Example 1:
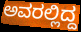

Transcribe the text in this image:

ಅವರಲ್ಲಿದ್ದ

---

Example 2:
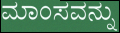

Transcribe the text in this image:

ಮಾಂಸವನ್ನು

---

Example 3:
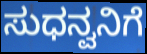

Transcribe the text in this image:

ಸುಧನ್ವನಿಗೆ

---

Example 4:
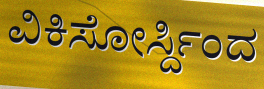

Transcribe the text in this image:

ವಿಕಿಸೋರ್ಸ್ದಿಂದ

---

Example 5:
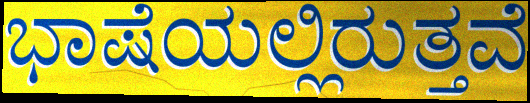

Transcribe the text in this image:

ಭಾಷೆಯಲ್ಲಿರುತ್ತವೆ